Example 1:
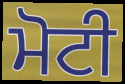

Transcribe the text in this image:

ਮੋਟੀ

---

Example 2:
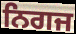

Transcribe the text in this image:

ਨਿਗਜ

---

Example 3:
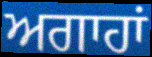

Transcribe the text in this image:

ਅਗਾਹਾਂ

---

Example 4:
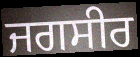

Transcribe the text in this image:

ਜਗਸੀਰ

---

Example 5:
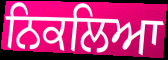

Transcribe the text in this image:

ਨਿਕਲਿਆ